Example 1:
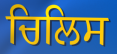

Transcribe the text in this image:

ਚਿਲਿਸ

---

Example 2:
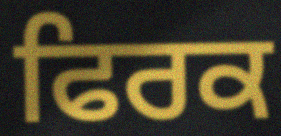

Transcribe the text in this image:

ਫਿਰਕ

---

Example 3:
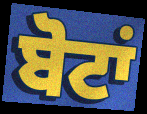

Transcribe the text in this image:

ਬੋਟਾਂ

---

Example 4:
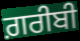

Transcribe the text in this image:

ਗ਼ਰੀਬੀ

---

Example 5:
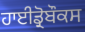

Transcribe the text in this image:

ਹਾਈਡ੍ਰੋਬੌਕਸ